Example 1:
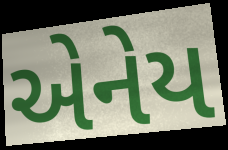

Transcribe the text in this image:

એનેય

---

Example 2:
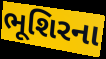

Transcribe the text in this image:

ભૂશિરના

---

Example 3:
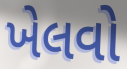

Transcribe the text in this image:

ખેલવો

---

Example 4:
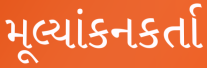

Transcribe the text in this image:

મૂલ્યાંકનકર્તા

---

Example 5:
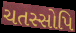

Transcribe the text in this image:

ચતસ્સોપિ